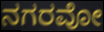
ನಗರವೋ